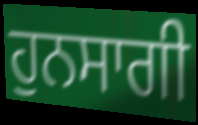
ਹੁਨਸਾਗੀ